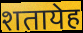
शतायेह